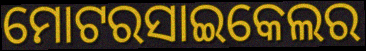
ମୋଟରସାଇକେଲର